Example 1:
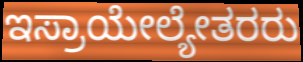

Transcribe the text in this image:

ಇಸ್ರಾಯೇಲ್ಯೇತರರು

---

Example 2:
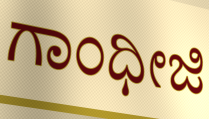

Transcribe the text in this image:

ಗಾಂಧೀಜಿ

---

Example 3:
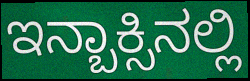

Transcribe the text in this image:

ಇನ್ಬಾಕ್ಸಿನಲ್ಲಿ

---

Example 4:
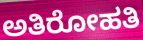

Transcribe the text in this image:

ಅತಿರೋಹತಿ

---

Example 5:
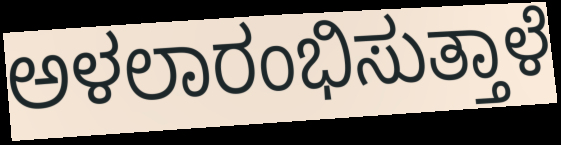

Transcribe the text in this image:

ಅಳಲಾರಂಭಿಸುತ್ತಾಳೆ